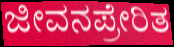
ಜೀವನಪ್ರೇರಿತ